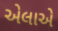
એલાએ